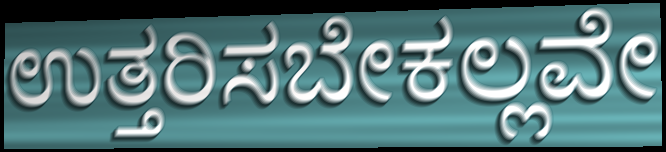
ಉತ್ತರಿಸಬೇಕಲ್ಲವೇ